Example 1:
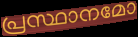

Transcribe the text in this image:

പ്രസ്ഥാനമോ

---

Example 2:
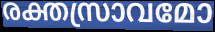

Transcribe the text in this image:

രക്തസ്രാവമോ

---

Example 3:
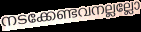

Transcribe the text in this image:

നടക്കേണ്ടവനല്ലല്ലോ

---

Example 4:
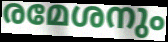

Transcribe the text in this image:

രമേശനും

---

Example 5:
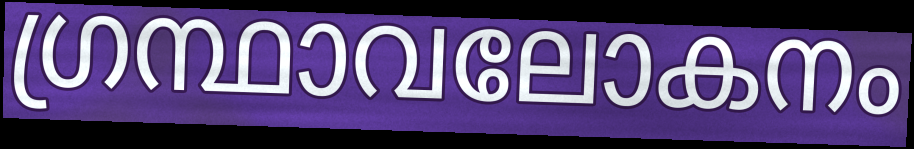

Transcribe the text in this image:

ഗ്രന്ഥാവലോകനം